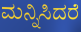
ಮನ್ನಿಸಿದರೆ